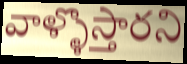
వాళ్ళొస్తారని